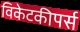
विकेटकीपर्स